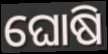
ଘୋଷି